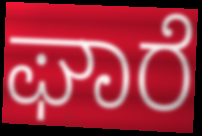
ಘಾರೆ